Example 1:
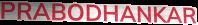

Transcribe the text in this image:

PRABODHANKAR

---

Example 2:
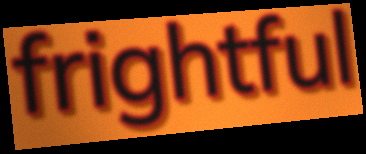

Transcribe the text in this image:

frightful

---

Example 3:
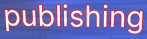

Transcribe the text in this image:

publishing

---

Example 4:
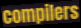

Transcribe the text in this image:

compilers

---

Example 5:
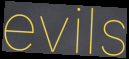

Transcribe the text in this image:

evils